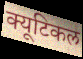
क्यूटिकल